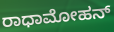
ರಾಧಾಮೋಹನ್